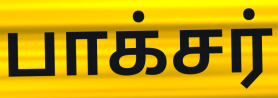
பாக்சர்